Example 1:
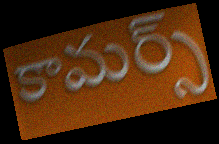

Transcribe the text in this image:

కామర్స్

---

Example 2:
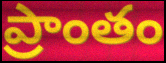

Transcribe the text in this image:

ప్రాంతం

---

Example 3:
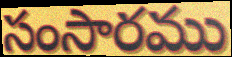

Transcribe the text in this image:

సంసారము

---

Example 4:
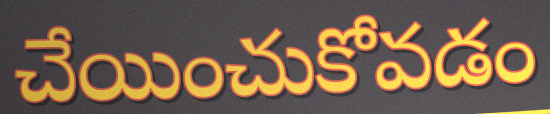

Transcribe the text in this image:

చేయించుకోవడం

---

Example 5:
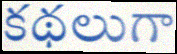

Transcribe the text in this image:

కథలుగా